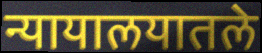
न्यायालयातले